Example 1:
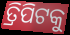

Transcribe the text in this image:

ତ୍ରିପିଟକୁ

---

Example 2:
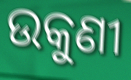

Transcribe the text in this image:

ଉକୁଣୀ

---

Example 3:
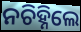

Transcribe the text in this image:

ନଚିହ୍ନିଲେ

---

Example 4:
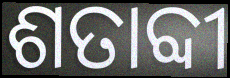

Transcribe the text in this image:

ଶତାବ୍ଦୀ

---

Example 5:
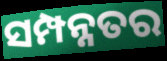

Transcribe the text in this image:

ସମ୍ପନ୍ନତର